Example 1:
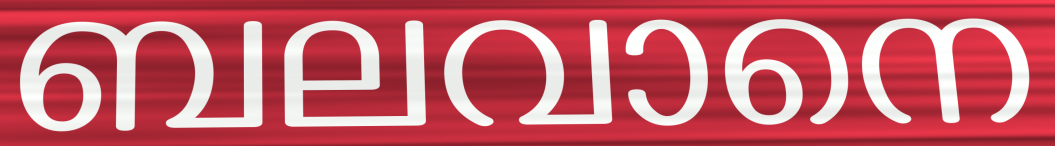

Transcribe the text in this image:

ബലവാനെ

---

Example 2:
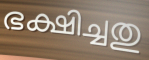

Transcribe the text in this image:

ഭക്ഷിച്ചതു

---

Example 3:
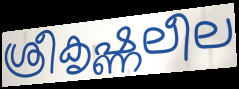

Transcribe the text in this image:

ശ്രീകൃഷ്ണലീല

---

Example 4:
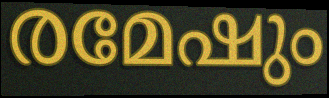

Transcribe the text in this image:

രമേഷും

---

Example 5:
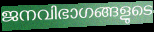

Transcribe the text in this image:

ജനവിഭാഗങ്ങളുടെ